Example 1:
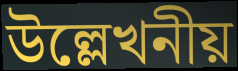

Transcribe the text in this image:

উল্লেখনীয়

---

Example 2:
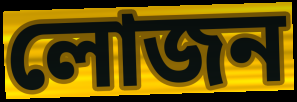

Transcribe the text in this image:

লোজন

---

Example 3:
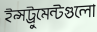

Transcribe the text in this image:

ইন্সট্রুমেন্টগুলো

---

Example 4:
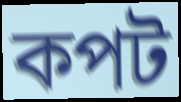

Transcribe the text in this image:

কপট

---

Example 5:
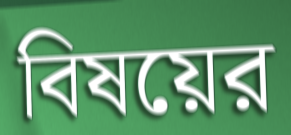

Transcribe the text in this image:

বিষয়ের